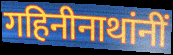
गहिनीनाथांनीं